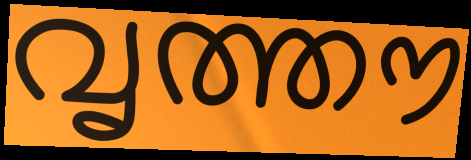
വൃത്തൗ